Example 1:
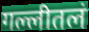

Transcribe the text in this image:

गल्लीतलं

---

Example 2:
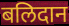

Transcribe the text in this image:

बलिदान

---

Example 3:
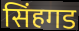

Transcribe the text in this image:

सिंहगड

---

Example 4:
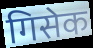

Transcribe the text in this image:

गिसेक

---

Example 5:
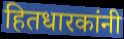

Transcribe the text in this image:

हितधारकांनी